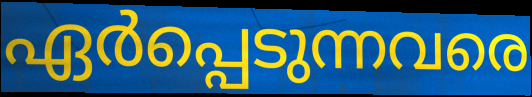
ഏർപ്പെടുന്നവരെ